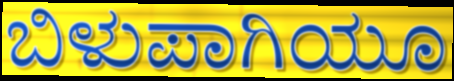
ಬಿಳುಪಾಗಿಯೂ